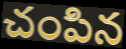
చంపిన